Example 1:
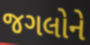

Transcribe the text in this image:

જગલોને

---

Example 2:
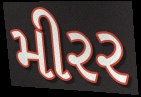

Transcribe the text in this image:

મીરર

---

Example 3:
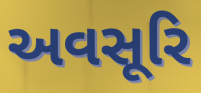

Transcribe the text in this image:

અવસૂરિ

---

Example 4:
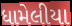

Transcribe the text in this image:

ધામેલીયા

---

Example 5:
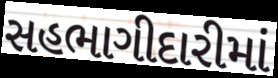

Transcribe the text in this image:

સહભાગીદારીમાં